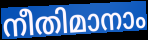
നീതിമാനാം